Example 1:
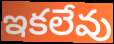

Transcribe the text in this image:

ఇకలేవు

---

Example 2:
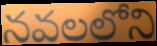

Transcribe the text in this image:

నవలలోని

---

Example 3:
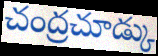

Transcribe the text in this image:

చంద్రచూడ్కు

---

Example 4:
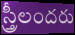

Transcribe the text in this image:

స్త్రీలందరు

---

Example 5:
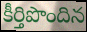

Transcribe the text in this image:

కీర్తిపొందిన